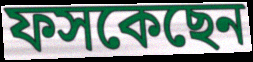
ফসকেছেন